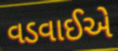
વડવાઈએ